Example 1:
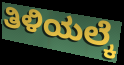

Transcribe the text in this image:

ತಿಳಿಯಲ್ಕೆ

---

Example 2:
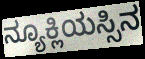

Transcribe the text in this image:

ನ್ಯೂಕ್ಲಿಯಸ್ಸಿನ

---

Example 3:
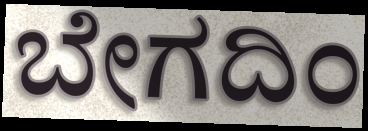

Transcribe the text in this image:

ಬೇಗದಿಂ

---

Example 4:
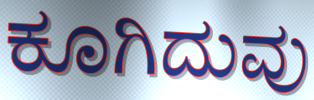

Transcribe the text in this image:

ಕೂಗಿದುವು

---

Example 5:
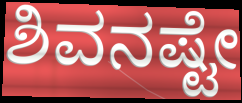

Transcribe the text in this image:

ಶಿವನಷ್ಟೇ